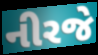
નીરજે